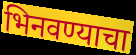
भिनवण्याचा